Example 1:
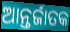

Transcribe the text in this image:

ଆନ୍ତର୍ଜାତକ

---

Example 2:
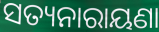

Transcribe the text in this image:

ସତ୍ୟନାରାୟଣା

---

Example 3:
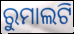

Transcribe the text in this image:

ରୁମାଲଟି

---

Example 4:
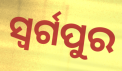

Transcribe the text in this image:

ସ୍ଵର୍ଗପୁର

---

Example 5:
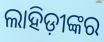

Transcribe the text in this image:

ଲାହିଡ଼ୀଙ୍କର